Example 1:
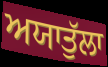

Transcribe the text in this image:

ਅਯਾਤੁੱਲਾ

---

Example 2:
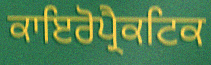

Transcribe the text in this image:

ਕਾਇਰੋਪ੍ਰੈਕਟਿਕ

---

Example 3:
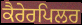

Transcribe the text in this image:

ਕੈਰੇਰਪਿਲਰ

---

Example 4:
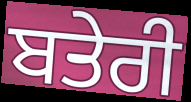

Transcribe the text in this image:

ਬਤੇਰੀ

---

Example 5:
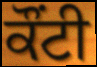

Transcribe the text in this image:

ਕੌਂਟੀ